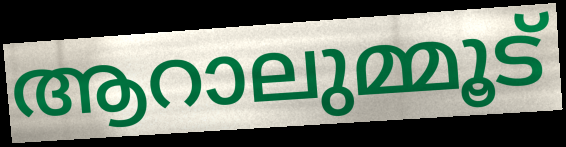
ആറാലുമ്മൂട്